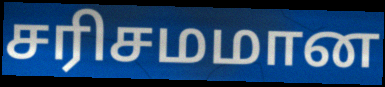
சரிசமமான